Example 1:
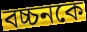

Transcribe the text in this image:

বচ্চনকে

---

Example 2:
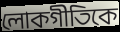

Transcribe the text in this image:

লোকগীতিকে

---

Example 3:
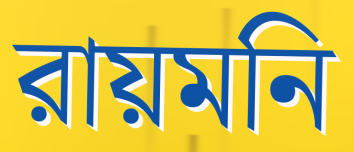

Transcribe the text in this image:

রায়মনি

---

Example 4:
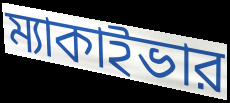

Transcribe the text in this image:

ম্যাকাইভার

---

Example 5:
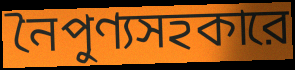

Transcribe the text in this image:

নৈপুণ্যসহকারে